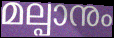
മല്പാനും